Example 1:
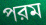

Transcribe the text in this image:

পরম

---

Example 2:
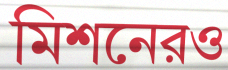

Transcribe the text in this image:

মিশনেরও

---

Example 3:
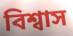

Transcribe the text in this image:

বিশ্বাস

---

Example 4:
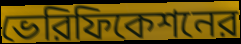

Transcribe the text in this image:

ভেরিফিকেশনের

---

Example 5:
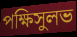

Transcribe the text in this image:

পক্ষিসুলভ